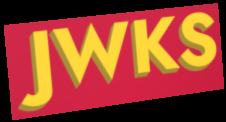
JWKS